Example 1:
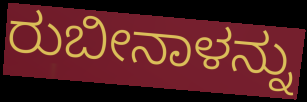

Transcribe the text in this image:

ರುಬೀನಾಳನ್ನು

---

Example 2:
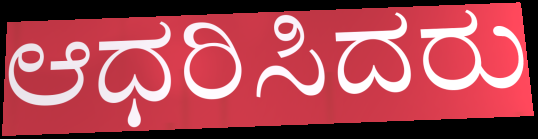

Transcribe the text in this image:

ಆಧರಿಸಿದರು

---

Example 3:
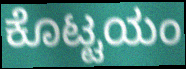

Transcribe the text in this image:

ಕೊಟ್ಟಯಂ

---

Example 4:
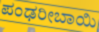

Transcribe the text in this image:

ಪಂಢರೀಬಾಯಿ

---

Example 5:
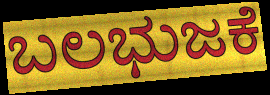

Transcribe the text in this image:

ಬಲಭುಜಕೆ